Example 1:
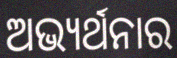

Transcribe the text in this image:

ଅଭ୍ୟର୍ଥନାର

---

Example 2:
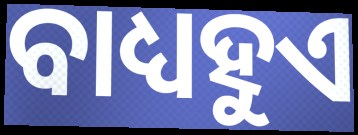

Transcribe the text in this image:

ବାଧ୍ୟହୁଏ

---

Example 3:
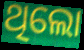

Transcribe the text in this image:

ଥିଲୋ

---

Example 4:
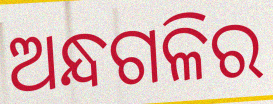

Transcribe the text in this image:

ଅନ୍ଧଗଳିର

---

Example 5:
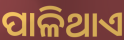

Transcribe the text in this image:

ପାଳିଥାଏ